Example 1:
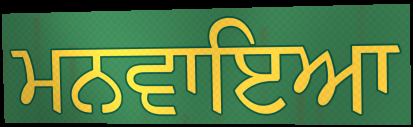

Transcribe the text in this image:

ਮਨਵਾਇਆ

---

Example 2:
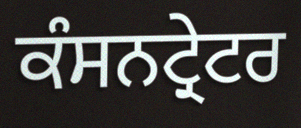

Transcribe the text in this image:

ਕੰਸਨਟ੍ਰੇਟਰ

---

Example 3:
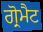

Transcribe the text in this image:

ਗ੍ਰੋਮੈਟ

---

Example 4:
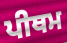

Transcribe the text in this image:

ਪੀਥਮ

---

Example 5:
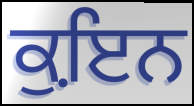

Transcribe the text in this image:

ਕ਼ੁਇਨ